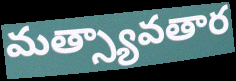
మత్స్యావతార